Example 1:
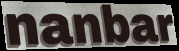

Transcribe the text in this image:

nanbar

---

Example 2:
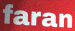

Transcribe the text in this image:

faran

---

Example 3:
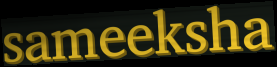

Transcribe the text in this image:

sameeksha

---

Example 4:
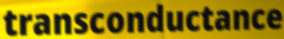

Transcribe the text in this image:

transconductance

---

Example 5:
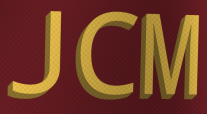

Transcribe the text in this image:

JCM